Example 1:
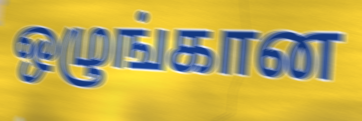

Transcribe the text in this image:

ஒழுங்கான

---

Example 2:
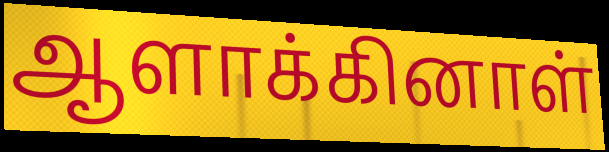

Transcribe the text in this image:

ஆளாக்கினாள்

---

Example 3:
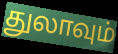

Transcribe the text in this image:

துலாவும்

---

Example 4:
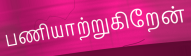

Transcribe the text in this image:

பணியாற்றுகிறேன்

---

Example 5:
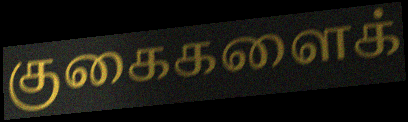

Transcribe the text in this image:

குகைகளைக்